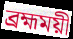
ব্রহ্মময়ী